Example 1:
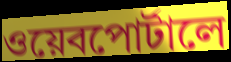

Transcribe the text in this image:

ওয়েবপোর্টালে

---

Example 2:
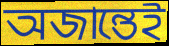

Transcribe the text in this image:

অজান্তেই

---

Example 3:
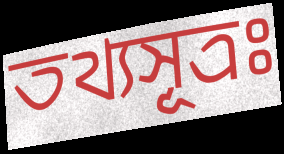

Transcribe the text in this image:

তথ্যসূত্রঃ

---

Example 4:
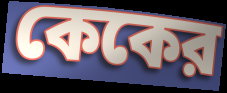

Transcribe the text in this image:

কেকের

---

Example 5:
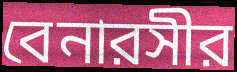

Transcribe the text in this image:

বেনারসীর